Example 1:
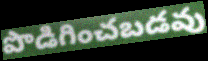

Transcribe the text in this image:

పొడిగించబడవు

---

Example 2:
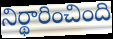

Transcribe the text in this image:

నిర్థారించింది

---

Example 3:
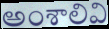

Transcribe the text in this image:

అంశాలివి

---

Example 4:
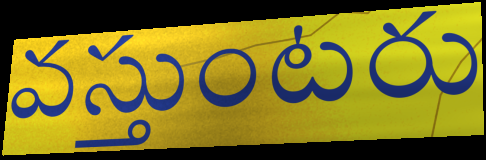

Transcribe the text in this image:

వస్తుంటరు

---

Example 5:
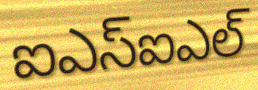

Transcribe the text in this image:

ఐఎస్ఐఎల్